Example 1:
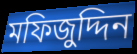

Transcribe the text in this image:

মফিজুদ্দিন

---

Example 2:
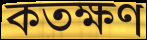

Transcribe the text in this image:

কতক্ষণ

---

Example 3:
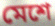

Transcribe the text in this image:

মেশে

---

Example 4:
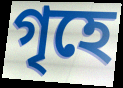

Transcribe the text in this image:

গৃহে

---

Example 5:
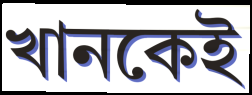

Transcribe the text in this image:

খানকেই